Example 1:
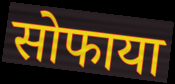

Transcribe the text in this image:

सोफाया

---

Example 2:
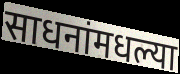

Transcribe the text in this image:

साधनांमधल्या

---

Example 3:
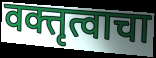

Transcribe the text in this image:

वक्तृत्वाचा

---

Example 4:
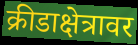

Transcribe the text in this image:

क्रीडाक्षेत्रावर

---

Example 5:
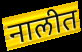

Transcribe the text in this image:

नालीत